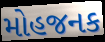
મોહજનક